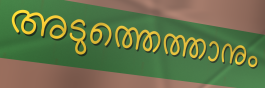
അടുത്തെത്താനും